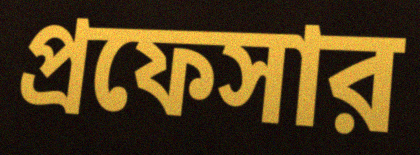
প্রফেসার